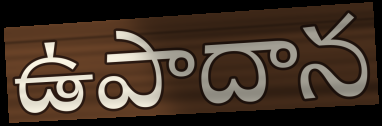
ఉపాదాన